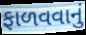
ફાળવવાનું